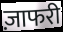
ज़ाफरी